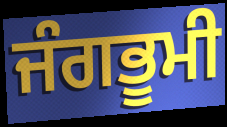
ਜੰਗਭੂਮੀ